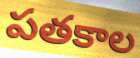
పతకాల